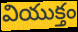
వియుక్తం